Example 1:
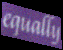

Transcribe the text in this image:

equally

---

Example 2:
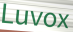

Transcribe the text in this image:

Luvox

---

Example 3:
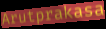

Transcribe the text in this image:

Arutprakasa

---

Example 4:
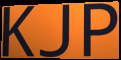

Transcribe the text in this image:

KJP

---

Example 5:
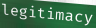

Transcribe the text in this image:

legitimacy